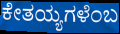
ಕೇತಯ್ಯಗಳೆಂಬ